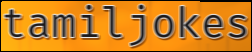
tamiljokes